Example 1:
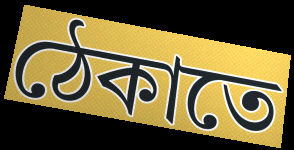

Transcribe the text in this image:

ঠেকাতে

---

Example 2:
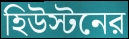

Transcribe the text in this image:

হিউস্টনের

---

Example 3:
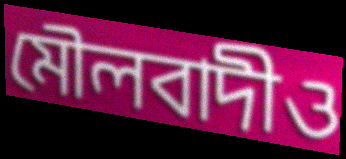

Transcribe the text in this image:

মৌলবাদীও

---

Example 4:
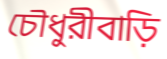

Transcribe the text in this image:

চৌধুরীবাড়ি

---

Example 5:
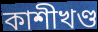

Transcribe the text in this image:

কাশীখণ্ড